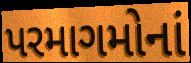
પરમાગમોનાં